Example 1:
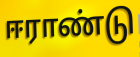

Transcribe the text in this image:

ஈராண்டு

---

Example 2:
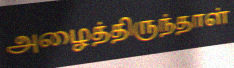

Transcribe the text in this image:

அழைத்திருந்தாள்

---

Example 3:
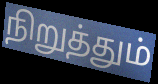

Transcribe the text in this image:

நிறுத்தும்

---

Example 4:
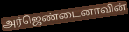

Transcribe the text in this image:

அர்ஜெண்டைனாவின்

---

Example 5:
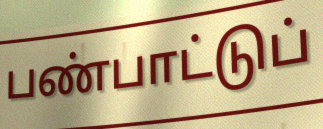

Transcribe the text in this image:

பண்பாட்டுப்